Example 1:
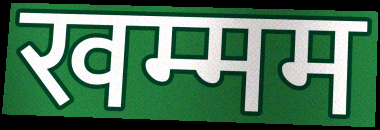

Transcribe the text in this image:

खम्मम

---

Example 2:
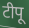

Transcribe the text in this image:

टीपू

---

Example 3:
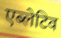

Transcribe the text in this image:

एब्लेटिव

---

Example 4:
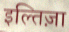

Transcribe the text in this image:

इल्तिज़ा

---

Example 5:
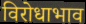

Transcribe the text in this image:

विरोधाभाव